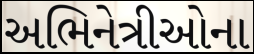
અભિનેત્રીઓના